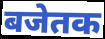
बजेतक